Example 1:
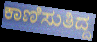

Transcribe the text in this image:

ಕಾಣಿಸುತಿದ್ದ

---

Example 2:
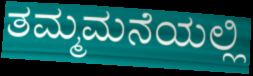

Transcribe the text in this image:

ತಮ್ಮಮನೆಯಲ್ಲಿ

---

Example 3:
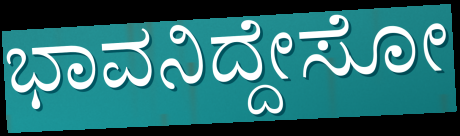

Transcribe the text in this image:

ಭಾವನಿದ್ದೇಸೋ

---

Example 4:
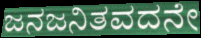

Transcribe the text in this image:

ಜನಜನಿತವದನೇ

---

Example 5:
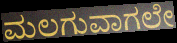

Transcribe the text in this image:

ಮಲಗುವಾಗಲೇ